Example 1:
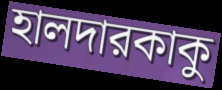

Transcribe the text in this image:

হালদারকাকু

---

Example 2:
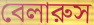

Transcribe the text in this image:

বেলারুস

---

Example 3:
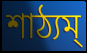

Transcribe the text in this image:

শাঠ্যম্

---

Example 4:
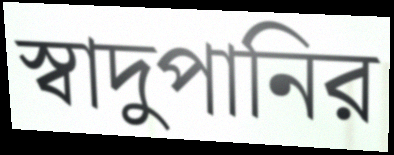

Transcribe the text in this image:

স্বাদুপানির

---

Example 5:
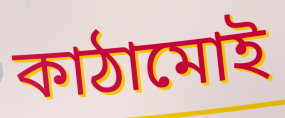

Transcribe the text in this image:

কাঠামোই